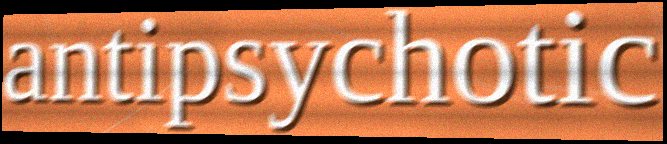
antipsychotic